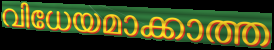
വിധേയമാക്കാത്ത